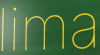
lima